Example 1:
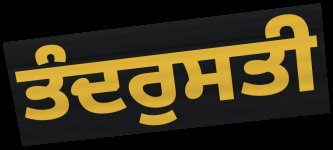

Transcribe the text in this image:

ਤੰਦਰੁਸਤੀ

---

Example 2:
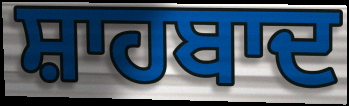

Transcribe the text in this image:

ਸ਼ਾਹਬਾਦ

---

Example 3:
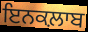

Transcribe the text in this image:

ਇਨਕ਼ਲਾਬ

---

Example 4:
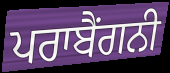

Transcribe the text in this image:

ਪਰਾਬੈਂਗਨੀ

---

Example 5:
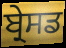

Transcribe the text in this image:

ਬ੍ਰੇਸਡ